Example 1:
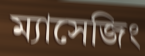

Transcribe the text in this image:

ম্যাসেজিং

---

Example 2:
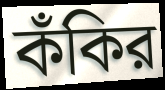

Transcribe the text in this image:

কঁকির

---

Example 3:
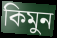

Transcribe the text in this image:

কিমুন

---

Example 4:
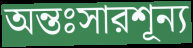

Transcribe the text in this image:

অন্তঃসারশূন্য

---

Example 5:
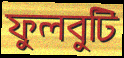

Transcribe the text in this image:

ফুলবুটি